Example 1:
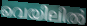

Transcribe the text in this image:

വെയിലിൽ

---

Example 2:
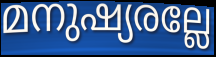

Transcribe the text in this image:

മനുഷ്യരല്ലേ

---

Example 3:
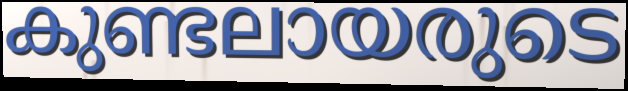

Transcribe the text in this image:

കുണ്ടലായരുടെ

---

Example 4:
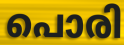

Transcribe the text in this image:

പൊരി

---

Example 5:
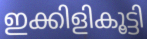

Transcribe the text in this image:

ഇക്കിളികൂട്ടി